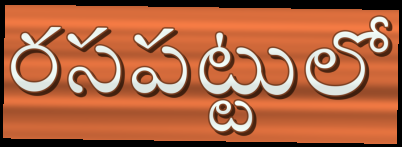
రసపట్టులో